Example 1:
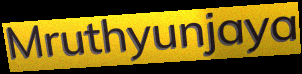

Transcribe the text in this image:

Mruthyunjaya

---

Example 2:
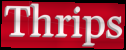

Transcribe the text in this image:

Thrips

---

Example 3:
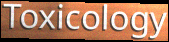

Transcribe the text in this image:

Toxicology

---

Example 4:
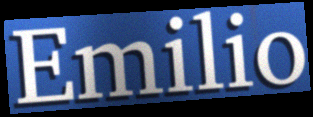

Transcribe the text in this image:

Emilio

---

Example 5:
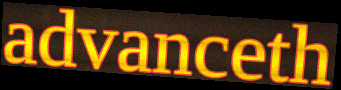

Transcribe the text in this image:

advanceth